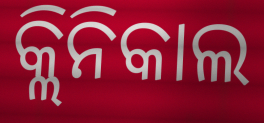
କ୍ଲିନିକାଲ